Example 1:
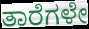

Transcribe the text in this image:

ತಾರೆಗಳೇ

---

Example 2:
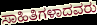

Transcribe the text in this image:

ಸಾಹಿತಿಗಳಾದವರು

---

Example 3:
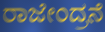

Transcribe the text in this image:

ರಾಜೇಂದ್ರನೆ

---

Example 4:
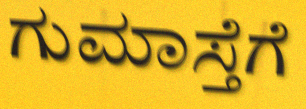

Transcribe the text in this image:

ಗುಮಾಸ್ತೆಗೆ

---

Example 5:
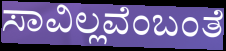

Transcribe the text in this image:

ಸಾವಿಲ್ಲವೆಂಬಂತೆ